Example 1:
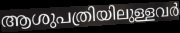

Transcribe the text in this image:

ആശുപത്രിയിലുള്ളവർ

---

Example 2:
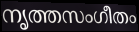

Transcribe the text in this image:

നൃത്തസംഗീതം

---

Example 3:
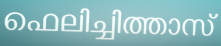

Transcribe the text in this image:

ഫെലിച്ചിത്താസ്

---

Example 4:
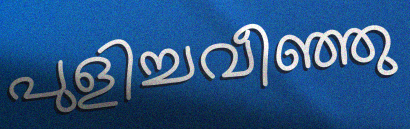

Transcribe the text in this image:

പുളിച്ചവീഞ്ഞു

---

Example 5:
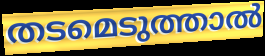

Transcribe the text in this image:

തടമെടുത്താൽ